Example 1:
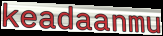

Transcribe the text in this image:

keadaanmu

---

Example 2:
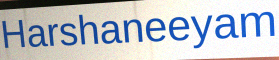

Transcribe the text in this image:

Harshaneeyam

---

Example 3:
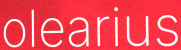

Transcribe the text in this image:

olearius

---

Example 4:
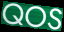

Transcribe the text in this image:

QOS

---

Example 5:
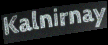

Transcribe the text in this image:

Kalnirnay